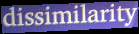
dissimilarity